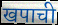
खपाची